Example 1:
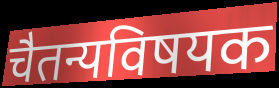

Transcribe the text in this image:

चैतन्यविषयक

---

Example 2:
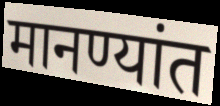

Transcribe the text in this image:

मानण्यांत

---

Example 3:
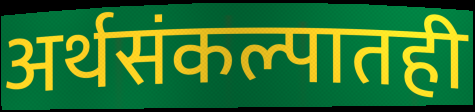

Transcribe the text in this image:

अर्थसंकल्पातही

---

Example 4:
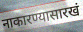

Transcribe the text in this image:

नाकारण्यासारखं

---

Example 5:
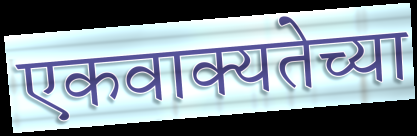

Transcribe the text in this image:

एकवाक्यतेच्या